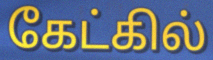
கேட்கில்